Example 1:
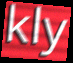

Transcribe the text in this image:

kly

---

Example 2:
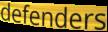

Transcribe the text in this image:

defenders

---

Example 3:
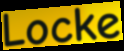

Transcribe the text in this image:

Locke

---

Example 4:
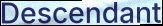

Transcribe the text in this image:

Descendant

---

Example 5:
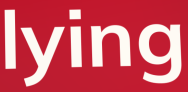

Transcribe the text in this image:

lying